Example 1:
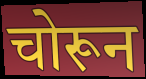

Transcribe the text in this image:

चोरून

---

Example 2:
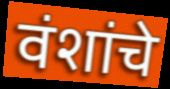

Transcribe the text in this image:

वंशांचे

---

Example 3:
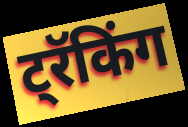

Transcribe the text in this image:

ट्रॅकिंग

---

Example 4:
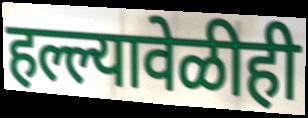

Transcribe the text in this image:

हल्ल्यावेळीही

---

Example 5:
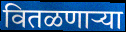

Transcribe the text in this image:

वितळणाऱ्या